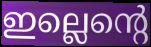
ഇല്ലെന്റെ